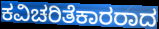
ಕವಿಚರಿತೆಕಾರರಾದ